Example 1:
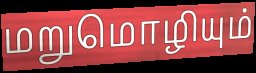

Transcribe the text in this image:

மறுமொழியும்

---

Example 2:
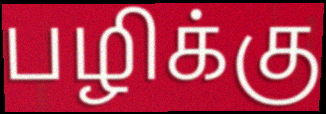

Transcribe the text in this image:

பழிக்கு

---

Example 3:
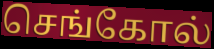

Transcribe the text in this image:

செங்கோல்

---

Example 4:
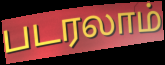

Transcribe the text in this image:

படரலாம்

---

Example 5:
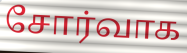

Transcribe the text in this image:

சோர்வாக